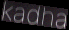
kadha